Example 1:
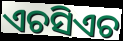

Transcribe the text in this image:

ଏଚସିଏଚ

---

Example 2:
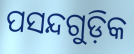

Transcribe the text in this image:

ପସନ୍ଦଗୁଡ଼ିକ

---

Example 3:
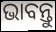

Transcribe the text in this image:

ଭାବନ୍ତୁ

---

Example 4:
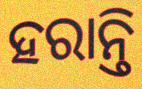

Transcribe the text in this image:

ହରାନ୍ତି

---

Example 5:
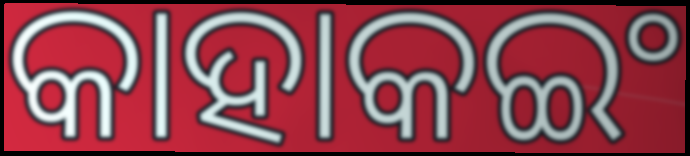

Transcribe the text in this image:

କାହାକଇଂ